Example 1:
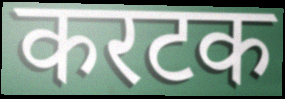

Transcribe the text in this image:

करटक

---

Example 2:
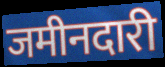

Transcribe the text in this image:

जमीनदारी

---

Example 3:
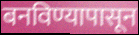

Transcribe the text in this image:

बनविण्यापासून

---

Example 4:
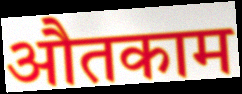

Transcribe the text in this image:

औतकाम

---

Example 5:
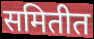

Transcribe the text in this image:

समितीत